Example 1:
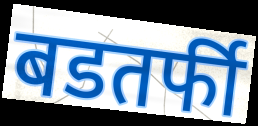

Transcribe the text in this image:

बडतर्फी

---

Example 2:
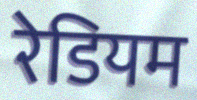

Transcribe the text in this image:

रेडियम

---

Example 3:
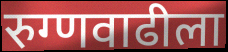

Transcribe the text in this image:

रुग्णवाढीला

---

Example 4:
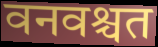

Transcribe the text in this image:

वनवश्चत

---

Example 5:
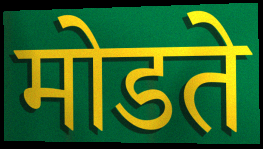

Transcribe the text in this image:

मोडते